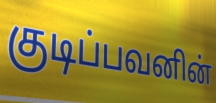
குடிப்பவனின்